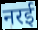
नरई